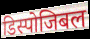
डिस्पोजिबल